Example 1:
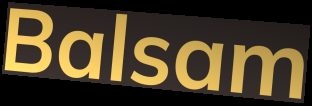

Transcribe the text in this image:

Balsam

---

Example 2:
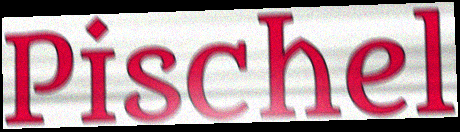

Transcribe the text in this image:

Pischel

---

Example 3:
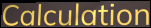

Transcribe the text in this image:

Calculation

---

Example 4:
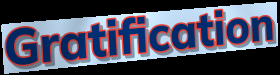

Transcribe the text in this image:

Gratification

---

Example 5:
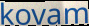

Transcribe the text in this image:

kovam